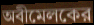
অবীমেলকের